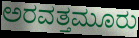
ಅರವತ್ತಮೂರು